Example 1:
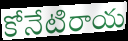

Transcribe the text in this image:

కోనేటిరాయ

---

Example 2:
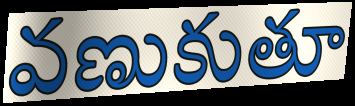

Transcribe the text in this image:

వణుకుతూ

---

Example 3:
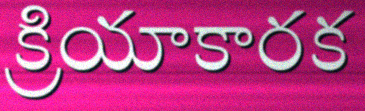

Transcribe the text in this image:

క్రియాకారక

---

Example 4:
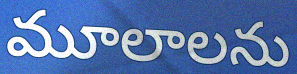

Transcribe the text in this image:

మూలాలను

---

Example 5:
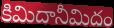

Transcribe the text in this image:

కిమిదానీమిదం